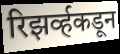
रिझर्व्हकडून